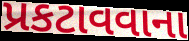
પ્રકટાવવાના